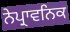
ਨੇਪ੍ਰਾਵਨਿਕ